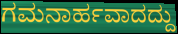
ಗಮನಾರ್ಹವಾದದ್ದು